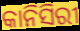
କାନିସିରୀ